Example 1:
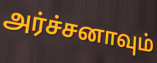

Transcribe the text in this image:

அர்ச்சனாவும்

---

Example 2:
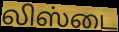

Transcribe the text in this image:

லிஸ்டை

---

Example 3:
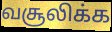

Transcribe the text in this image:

வசூலிக்க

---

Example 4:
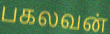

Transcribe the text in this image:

பகலவன்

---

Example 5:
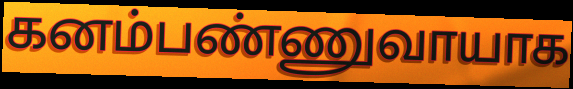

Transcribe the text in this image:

கனம்பண்ணுவாயாக